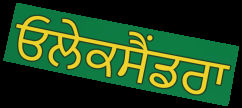
ਓਲੇਕਸੈਂਡਰਾ